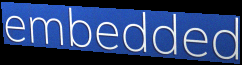
embedded